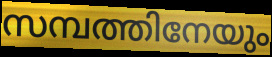
സമ്പത്തിനേയും